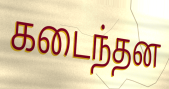
கடைந்தன